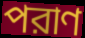
পরাণ